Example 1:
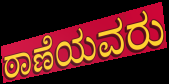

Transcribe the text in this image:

ಠಾಣೆಯವರು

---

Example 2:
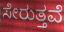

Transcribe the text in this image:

ಸೇರುತ್ತವೆ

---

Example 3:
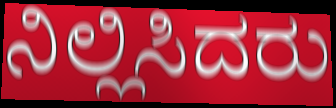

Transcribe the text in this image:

ನಿಲ್ಲಿಸಿದರು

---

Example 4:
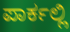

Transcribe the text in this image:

ಪಾರ್ಕಲ್ಲಿ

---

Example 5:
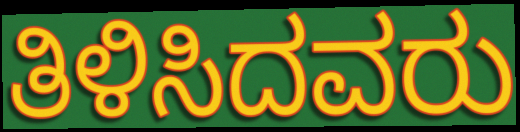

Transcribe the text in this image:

ತಿಳಿಸಿದವರು